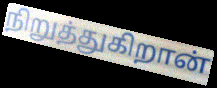
நிறுத்துகிறான்